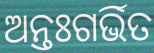
ଅନ୍ତଃଗର୍ଭିତ